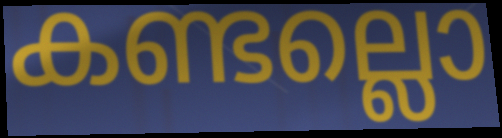
കണ്ടല്ലൊ